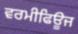
ਵਰਮੀਫਿਊਜ